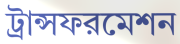
ট্রান্সফরমেশন